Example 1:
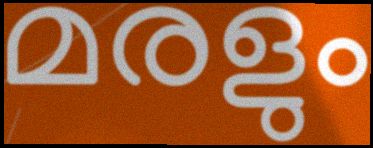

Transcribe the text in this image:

മരളും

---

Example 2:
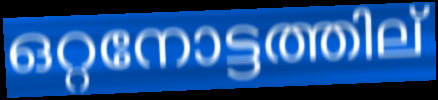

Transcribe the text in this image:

ഒറ്റനോട്ടത്തില്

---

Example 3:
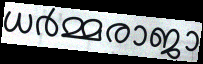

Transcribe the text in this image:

ധർമ്മരാജാ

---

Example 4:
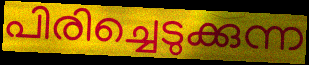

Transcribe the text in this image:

പിരിച്ചെടുക്കുന്ന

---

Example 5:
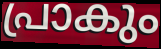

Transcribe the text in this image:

പ്രാകും